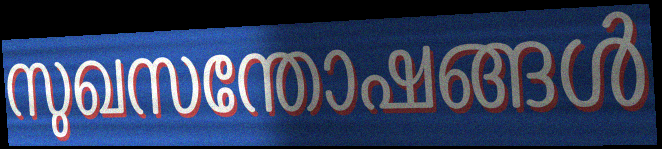
സുഖസന്തോഷങ്ങൾ